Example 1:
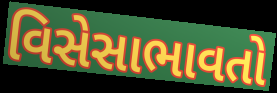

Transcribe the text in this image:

વિસેસાભાવતો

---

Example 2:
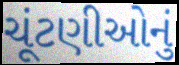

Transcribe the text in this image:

ચૂંટણીઓનું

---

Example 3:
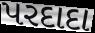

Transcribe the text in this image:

પરદાદા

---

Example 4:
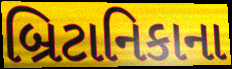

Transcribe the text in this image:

બ્રિટાનિકાના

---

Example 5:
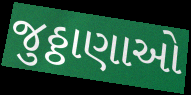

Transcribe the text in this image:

જુઠ્ઠાણાઓ